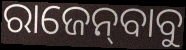
ରାଜେନ୍‌ବାବୁ